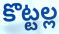
కొట్టల్ల